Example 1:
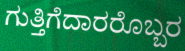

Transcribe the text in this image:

ಗುತ್ತಿಗೆದಾರರೊಬ್ಬರ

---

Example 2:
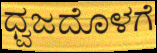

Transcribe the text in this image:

ಧ್ವಜದೊಳಗೆ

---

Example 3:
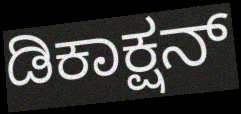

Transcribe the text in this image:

ಡಿಕಾಕ್ಷನ್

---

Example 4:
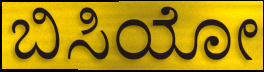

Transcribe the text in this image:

ಬಿಸಿಯೋ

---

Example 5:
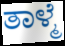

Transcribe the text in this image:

ತಾಳ್ಮೆ